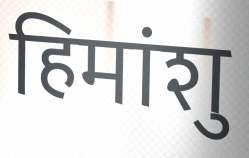
हिमांशु